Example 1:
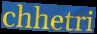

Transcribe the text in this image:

chhetri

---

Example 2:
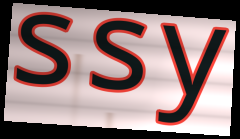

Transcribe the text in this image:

ssy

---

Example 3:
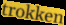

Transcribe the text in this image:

trokken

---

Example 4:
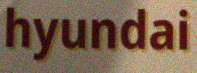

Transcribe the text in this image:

hyundai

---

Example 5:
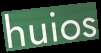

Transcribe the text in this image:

huios